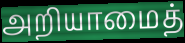
அறியாமைத்